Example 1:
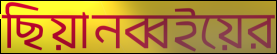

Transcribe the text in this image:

ছিয়ানব্বইয়ের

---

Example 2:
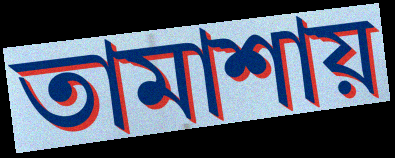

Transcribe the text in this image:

তামাশায়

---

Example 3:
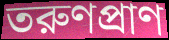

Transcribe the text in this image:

তরুণপ্রাণ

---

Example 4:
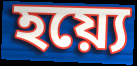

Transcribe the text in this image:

হয়্যে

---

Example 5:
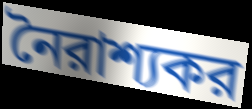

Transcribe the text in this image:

নৈরাশ্যকর